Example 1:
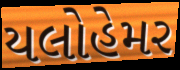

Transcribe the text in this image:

યલોહેમર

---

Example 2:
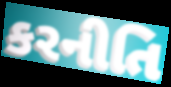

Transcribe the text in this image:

કરનીતિ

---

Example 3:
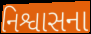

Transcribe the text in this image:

નિશ્વાસના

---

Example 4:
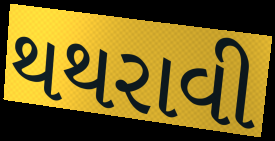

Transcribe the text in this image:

થથરાવી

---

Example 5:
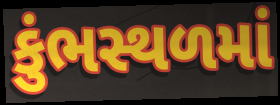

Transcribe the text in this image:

કુંભસ્થળમાં